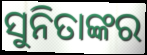
ସୁନିତାଙ୍କର